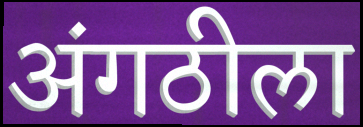
अंगठीला